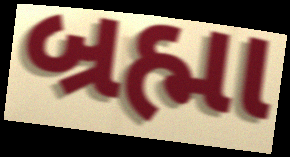
બ્રહ્મા